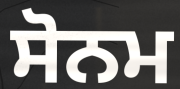
ਸੋਨਮ